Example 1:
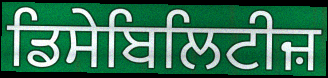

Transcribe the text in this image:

ਡਿਸੇਬਿਲਿਟੀਜ਼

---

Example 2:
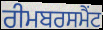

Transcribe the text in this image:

ਰੀਮਬਰਸਮੈਂਟ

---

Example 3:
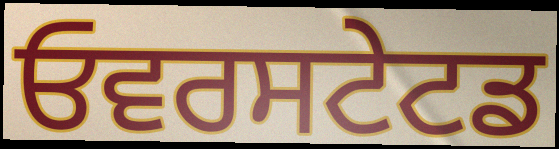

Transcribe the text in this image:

ਓਵਰਸਟੇਟਡ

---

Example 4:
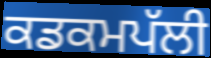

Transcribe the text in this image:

ਕਡਕਮਪੱਲੀ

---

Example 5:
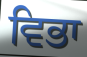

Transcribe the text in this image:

ਵਿਭਾ